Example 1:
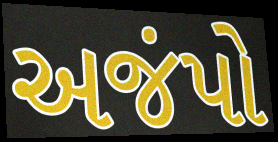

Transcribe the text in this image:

અજંપો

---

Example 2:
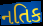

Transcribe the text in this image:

નતિક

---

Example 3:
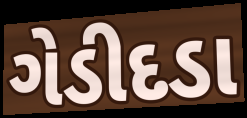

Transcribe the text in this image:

ગેડીદડા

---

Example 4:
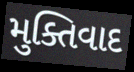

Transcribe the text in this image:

મુક્તિવાદ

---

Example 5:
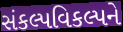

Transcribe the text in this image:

સંકલ્પવિકલ્પને